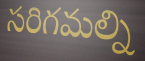
సరిగమల్ని